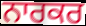
ਨਾਰਕਰ